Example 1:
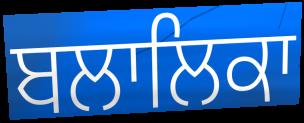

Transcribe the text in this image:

ਬਲਾਲਿਕਾ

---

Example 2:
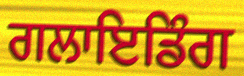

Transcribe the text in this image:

ਗਲਾਇਡਿੰਗ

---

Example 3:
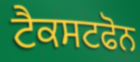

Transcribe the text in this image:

ਟੈਕਸਟਫੋਨ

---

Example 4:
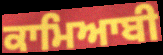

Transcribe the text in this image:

ਕਾਮਿਆਬੀ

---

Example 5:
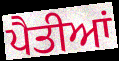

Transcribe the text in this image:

ਪੈਤੀਆਂ